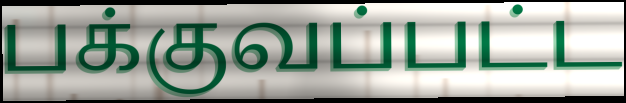
பக்குவப்பட்ட